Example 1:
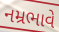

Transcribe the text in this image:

નમ્રભાવે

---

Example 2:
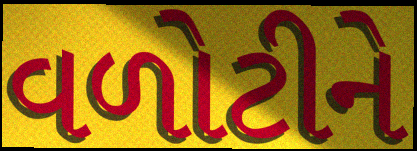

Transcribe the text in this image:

વળોટીને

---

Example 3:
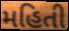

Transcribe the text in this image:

મહિતી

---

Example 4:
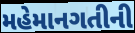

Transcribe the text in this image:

મહેમાનગતીની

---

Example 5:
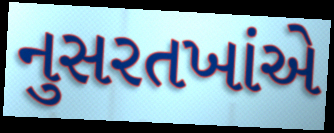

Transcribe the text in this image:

નુસરતખાંએ